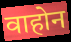
वाहोन